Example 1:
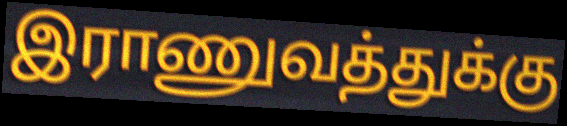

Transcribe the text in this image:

இராணுவத்துக்கு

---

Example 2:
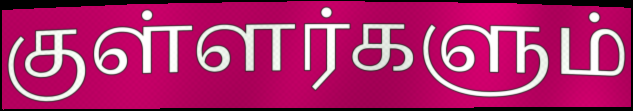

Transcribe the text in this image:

குள்ளர்களும்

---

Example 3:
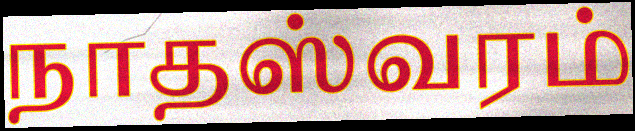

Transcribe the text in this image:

நாதஸ்வரம்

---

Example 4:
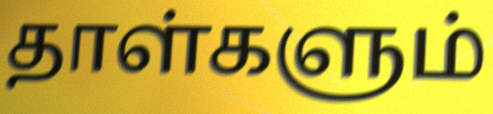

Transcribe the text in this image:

தாள்களும்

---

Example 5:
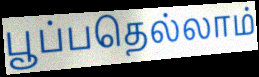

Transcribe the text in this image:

பூப்பதெல்லாம்